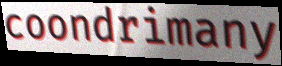
coondrimany